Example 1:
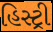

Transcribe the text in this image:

હિસ્ટ્રી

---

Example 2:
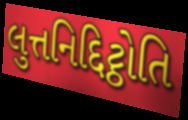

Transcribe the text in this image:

લુત્તનિદ્દિટ્ઠોતિ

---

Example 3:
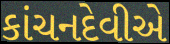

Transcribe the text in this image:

કાંચનદેવીએ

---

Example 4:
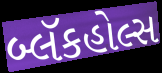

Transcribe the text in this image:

બ્લૅકહોલ્સ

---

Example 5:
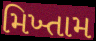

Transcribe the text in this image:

મિખ્તામ